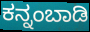
ಕನ್ನಂಬಾಡಿ